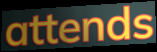
attends